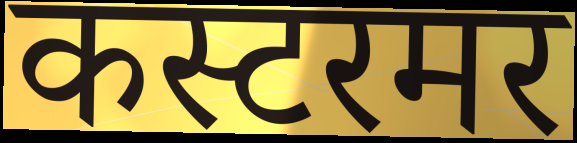
कस्टरमर